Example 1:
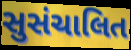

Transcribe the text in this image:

સુસંચાલિત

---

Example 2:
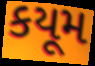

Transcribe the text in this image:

કયૂમ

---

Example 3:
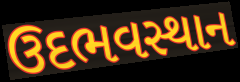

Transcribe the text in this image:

ઉદભવસ્થાન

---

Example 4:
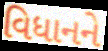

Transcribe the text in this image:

વિધાનને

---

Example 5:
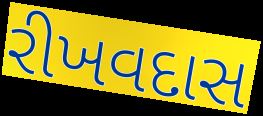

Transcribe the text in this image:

રીખવદાસ